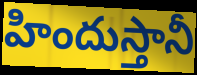
హిందుస్తానీ